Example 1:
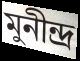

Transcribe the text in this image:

মুনীন্দ্ৰ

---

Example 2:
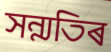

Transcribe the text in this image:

সন্মতিৰ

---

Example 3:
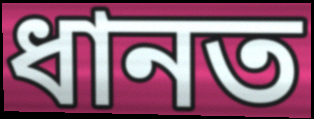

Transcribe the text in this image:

ধানত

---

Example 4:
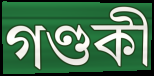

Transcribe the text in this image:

গণ্ডকী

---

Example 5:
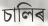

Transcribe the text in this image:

চালিৰ